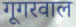
गूगरवाल